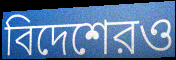
বিদেশেরও